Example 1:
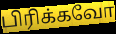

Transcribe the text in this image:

பிரிக்கவோ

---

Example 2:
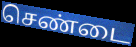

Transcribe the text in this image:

செண்டை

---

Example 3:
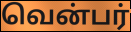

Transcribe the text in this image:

வென்பர்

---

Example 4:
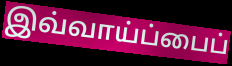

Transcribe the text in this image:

இவ்வாய்ப்பைப்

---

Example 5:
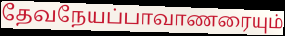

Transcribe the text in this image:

தேவநேயப்பாவாணரையும்